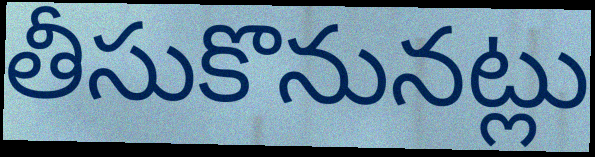
తీసుకొనునట్లు